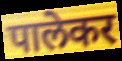
पालेकर